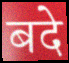
बदे